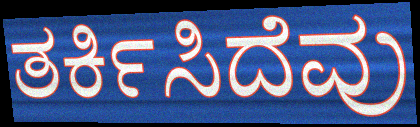
ತರ್ಕಿಸಿದೆವು